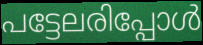
പട്ടേലരിപ്പോൾ